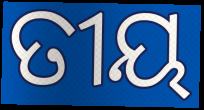
ତୀୟ